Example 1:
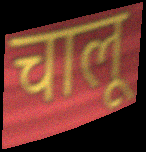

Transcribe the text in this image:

चालू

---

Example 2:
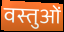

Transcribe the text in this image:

वस्‍तुओं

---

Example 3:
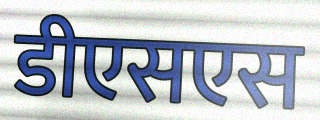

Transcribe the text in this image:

डीएसएस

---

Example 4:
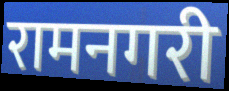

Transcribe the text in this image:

रामनगरी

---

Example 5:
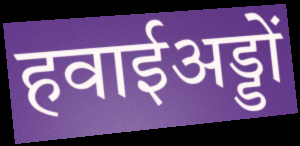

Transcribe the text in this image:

हवाईअड्डों